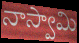
నాస్వామి